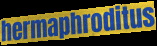
hermaphroditus